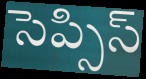
సెప్సిస్